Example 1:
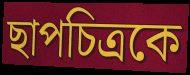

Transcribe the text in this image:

ছাপচিত্রকে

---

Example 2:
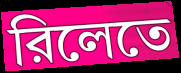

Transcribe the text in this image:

রিলেতে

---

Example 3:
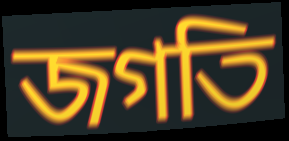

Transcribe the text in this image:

জগতি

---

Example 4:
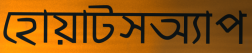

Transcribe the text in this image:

হোয়াটসঅ্যাপ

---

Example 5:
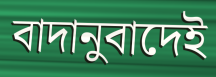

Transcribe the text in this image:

বাদানুবাদেই